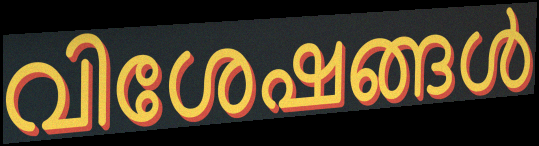
വിശേഷങ്ങൾ